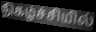
நிகழ்ச்சியில்